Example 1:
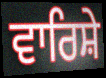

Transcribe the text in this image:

ਵਾਰਿਸ਼ੇ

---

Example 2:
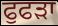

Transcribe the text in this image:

ਫੁਫੜਾ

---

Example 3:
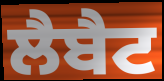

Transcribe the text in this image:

ਲੈਬੈਟ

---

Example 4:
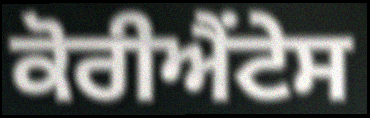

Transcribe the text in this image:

ਕੋਰੀਐਂਟੇਸ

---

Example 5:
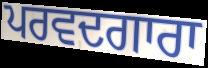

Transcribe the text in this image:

ਪਰਵਦਗਾਰਾ